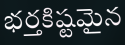
భర్తకిష్టమైన